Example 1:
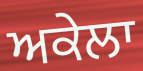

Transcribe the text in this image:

ਅਕੇਲਾ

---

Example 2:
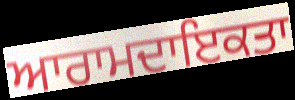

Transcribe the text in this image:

ਆਰਾਮਦਾਇਕਤਾ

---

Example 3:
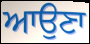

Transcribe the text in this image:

ਆਉਣਾ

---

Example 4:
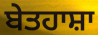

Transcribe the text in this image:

ਬੇਤਹਾਸ਼ਾ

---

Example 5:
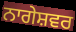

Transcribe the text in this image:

ਨਾਗੇਸ਼ਵਰ